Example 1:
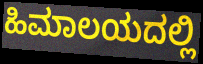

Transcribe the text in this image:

ಹಿಮಾಲಯದಲ್ಲಿ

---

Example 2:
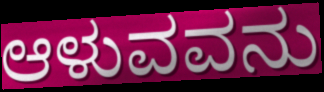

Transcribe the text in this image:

ಆಳುವವನು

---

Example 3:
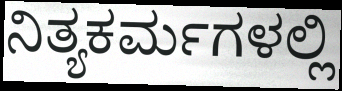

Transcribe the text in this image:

ನಿತ್ಯಕರ್ಮಗಳಲ್ಲಿ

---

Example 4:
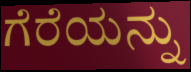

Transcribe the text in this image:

ಗೆರೆಯನ್ನು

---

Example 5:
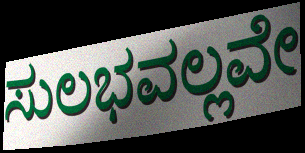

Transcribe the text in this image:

ಸುಲಭವಲ್ಲವೇ